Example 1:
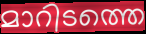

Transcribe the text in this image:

മാറിടത്തെ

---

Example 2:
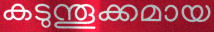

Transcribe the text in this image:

കടുന്തൂക്കമായ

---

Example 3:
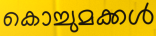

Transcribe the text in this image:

കൊച്ചുമക്കൾ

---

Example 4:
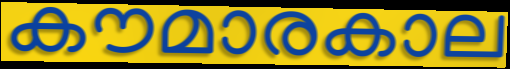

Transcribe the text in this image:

കൗമാരകാല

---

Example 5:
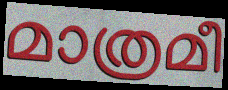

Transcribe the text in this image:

മാത്രമീ